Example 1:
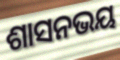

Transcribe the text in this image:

ଶାସନଭୟ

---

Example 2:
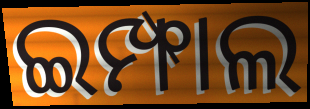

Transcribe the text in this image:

ଇମ୍ଫାଲ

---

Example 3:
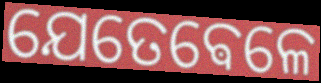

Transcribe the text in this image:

ଯେତେଵେଳେ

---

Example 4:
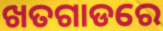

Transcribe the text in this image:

ଖତଗାଡରେ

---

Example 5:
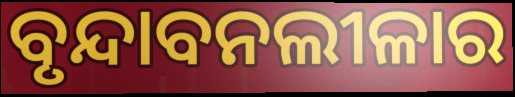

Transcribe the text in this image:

ବୃନ୍ଦାବନଲୀଳାର